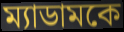
ম্যাডামকে